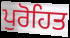
ਪੁਰੋਹਿਤ